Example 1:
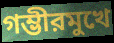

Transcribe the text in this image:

গম্ভীরমুখে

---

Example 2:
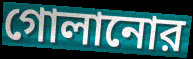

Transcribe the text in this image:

গোলানোর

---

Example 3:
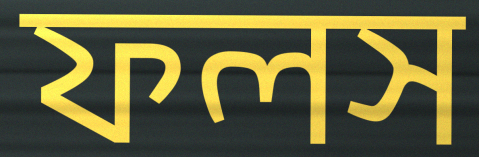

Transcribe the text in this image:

ফলস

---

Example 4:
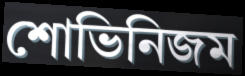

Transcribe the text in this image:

শোভিনিজম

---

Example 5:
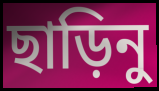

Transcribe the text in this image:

ছাড়িনু